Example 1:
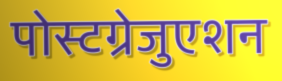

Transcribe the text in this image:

पोस्टग्रेजुएशन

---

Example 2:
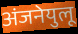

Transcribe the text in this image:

अंजनेयुलू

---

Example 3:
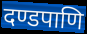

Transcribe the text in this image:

दण्डपाणि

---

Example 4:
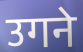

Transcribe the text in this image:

उगने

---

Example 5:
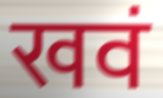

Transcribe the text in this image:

खवं